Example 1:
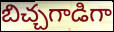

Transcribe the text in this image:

బిచ్చగాడిగా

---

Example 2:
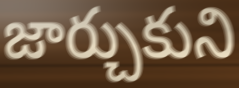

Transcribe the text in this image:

జార్చుకుని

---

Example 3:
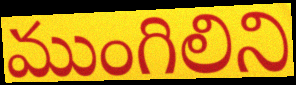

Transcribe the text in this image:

ముంగిలిని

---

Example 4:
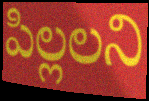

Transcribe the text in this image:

పిల్లలని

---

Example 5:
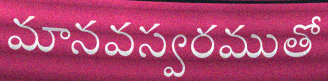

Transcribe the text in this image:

మానవస్వరముతో